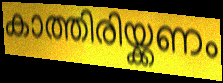
കാത്തിരിയ്ക്കണം